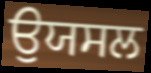
ਉਯਸਲ